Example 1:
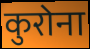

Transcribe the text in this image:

कुरोना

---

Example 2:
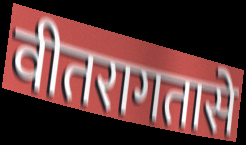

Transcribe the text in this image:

वीतरागतासे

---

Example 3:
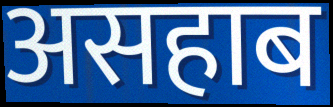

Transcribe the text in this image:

असहाब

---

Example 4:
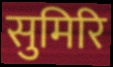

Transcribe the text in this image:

सुमिरि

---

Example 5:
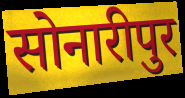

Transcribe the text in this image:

सोनारीपुर